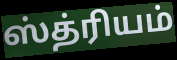
ஸ்த்ரியம்